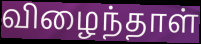
விழைந்தாள்